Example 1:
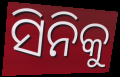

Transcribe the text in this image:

ସିନିକୁ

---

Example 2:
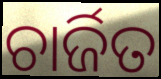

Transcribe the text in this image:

ଚାର୍ଜିତ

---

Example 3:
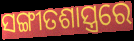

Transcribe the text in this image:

ସଙ୍ଗୀତଶାସ୍ତ୍ରରେ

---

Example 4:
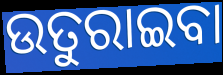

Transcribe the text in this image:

ଉତୁରାଇବା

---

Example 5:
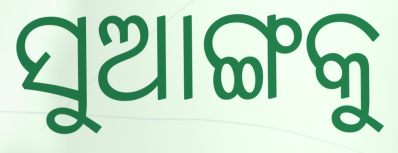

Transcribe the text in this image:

ସୁଆଙ୍ଗକୁ